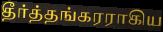
தீர்த்தங்கரராகிய